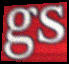
gs